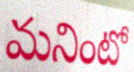
మనింటో